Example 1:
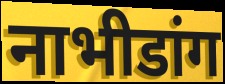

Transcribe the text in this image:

नाभीडांग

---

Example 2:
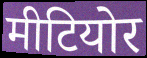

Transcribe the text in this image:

मीटियोर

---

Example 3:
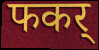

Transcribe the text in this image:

फकर्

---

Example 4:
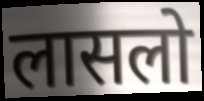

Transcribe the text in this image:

लासलो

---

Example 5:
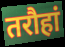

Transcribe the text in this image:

तरौहां